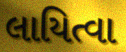
લાયિત્વા